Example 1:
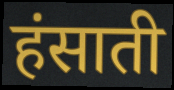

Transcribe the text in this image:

हंसाती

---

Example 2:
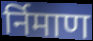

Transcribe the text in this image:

र्निमाण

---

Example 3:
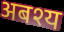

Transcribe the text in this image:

अबश्य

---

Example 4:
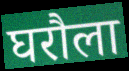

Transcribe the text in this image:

घरौला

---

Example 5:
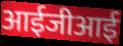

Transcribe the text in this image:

आईजीआई